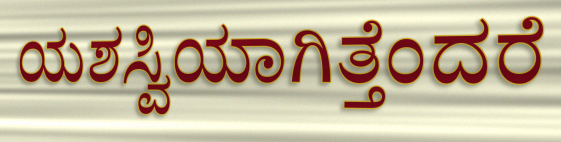
ಯಶಸ್ವಿಯಾಗಿತ್ತೆಂದರೆ